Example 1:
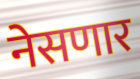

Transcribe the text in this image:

नेसणार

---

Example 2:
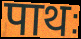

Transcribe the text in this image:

पाथः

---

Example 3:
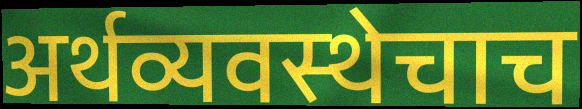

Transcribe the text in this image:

अर्थव्यवस्थेचाच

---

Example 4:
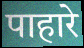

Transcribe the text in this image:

पाहारे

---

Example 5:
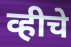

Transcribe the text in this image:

व्हीचे